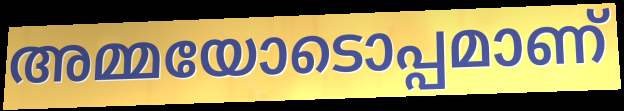
അമ്മയോടൊപ്പമാണ്